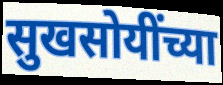
सुखसोयींच्या